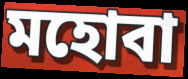
মহোবা